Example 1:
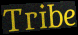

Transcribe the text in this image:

Tribe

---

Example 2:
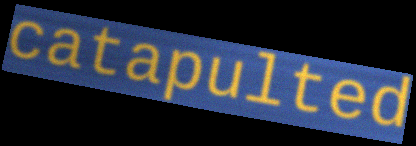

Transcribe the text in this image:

catapulted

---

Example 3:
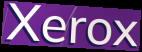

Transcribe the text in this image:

Xerox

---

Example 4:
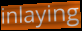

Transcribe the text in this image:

inlaying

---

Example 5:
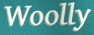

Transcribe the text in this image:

Woolly